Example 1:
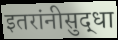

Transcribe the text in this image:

इतरांनीसुद्धा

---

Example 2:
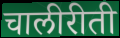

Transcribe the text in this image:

चालीरीती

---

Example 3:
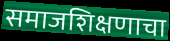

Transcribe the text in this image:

समाजशिक्षणाचा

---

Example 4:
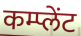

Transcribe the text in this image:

कम्प्लेंट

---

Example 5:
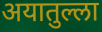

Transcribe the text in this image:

अयातुल्ला